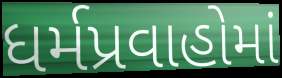
ધર્મપ્રવાહોમાં